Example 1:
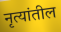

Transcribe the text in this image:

नृत्यांतील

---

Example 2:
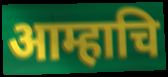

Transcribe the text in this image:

आम्हाचि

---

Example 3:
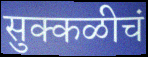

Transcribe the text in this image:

सुक्कळीचं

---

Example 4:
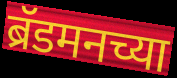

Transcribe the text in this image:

ब्रॅडमनच्या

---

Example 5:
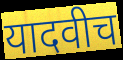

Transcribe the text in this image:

यादवीच